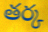
తర్క